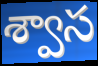
శ్వాస